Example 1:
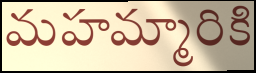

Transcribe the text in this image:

మహమ్మారికి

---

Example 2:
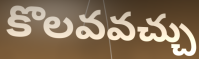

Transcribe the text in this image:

కొలవవచ్చు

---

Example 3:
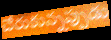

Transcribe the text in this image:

చేరుకున్నప్పుడు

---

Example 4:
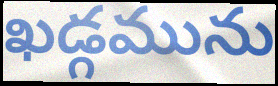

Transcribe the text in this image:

ఖడ్గమును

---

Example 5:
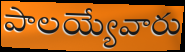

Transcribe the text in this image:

పాలయ్యేవారు